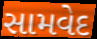
સામવેદ